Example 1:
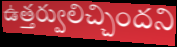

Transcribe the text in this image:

ఉత్తర్వులిచ్చిందని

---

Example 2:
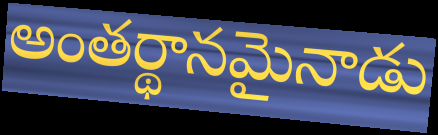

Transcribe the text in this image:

అంతర్థానమైనాడు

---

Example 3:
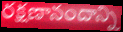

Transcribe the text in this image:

రక్షణానందాన్ని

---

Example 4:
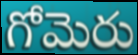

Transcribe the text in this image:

గోమెరు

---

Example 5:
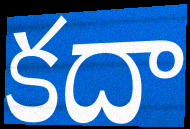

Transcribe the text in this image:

కదా